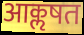
आकॢषत